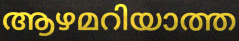
ആഴമറിയാത്ത